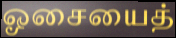
ஓசையைத்